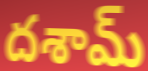
దశామ్